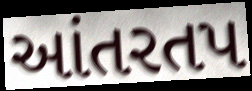
આંતરતપ